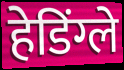
हेडिंग्ले